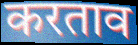
करताव